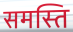
समस्ति